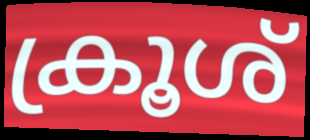
ക്രൂശ്